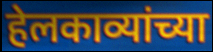
हेलकाव्यांच्या